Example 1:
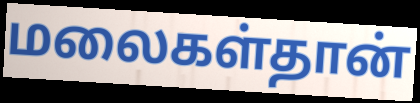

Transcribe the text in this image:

மலைகள்தான்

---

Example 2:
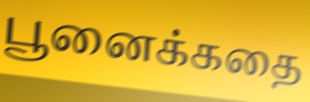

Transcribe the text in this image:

பூனைக்கதை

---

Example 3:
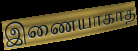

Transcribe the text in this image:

இணையாகாத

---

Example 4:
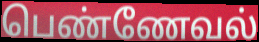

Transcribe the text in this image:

பெண்ணேவல்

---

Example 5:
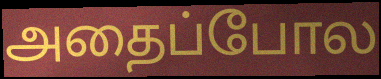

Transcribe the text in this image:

அதைப்போல